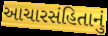
આચારસંહિતાનું